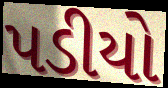
પડીયો